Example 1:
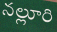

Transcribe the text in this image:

నల్లూరి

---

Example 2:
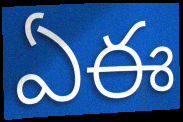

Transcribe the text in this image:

ఏఈ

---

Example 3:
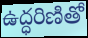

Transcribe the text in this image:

ఉద్ధరిణితో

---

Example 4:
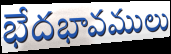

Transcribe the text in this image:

భేదభావములు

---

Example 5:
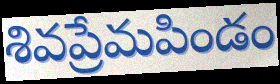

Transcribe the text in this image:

శివప్రేమపిండం